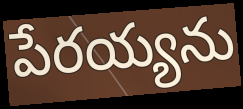
పేరయ్యను